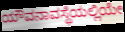
ಯೌವನಾವಸ್ಥೆಯಲ್ಲಿಯೇ